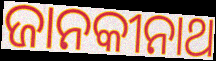
ଜାନକୀନାଥ